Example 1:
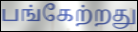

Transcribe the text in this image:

பங்கேற்றது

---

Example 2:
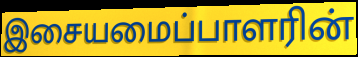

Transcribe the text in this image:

இசையமைப்பாளரின்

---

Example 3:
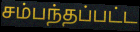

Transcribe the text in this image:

சம்பந்தப்பட்ட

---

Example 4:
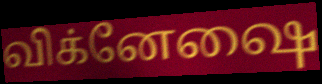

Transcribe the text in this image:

விக்னேஷை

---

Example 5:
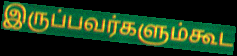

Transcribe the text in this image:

இருப்பவர்களும்கூட